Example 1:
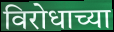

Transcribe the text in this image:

विरोधाच्या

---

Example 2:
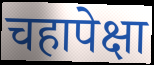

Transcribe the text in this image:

चहापेक्षा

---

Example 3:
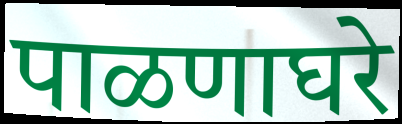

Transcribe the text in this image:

पाळणाघरे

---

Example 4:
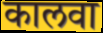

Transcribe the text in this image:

कालवा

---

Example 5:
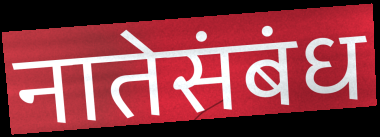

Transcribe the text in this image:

नातेसंबंध